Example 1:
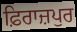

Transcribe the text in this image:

ਫ਼ਿਰਾਜ਼ਪੁਰ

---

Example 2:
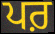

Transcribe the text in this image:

ਪਰ਼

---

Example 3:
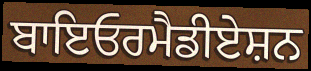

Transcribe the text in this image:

ਬਾਇਓਰਮੈਡੀਏਸ਼ਨ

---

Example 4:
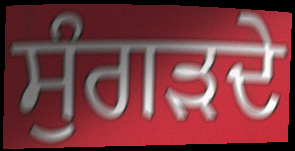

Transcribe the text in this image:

ਸੁੰਗੜਦੇ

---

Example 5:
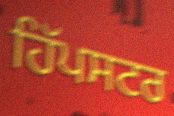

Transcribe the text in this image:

ਹਿੱਪਸਟਰ